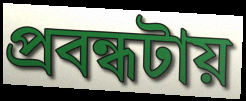
প্রবন্ধটায়